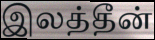
இலத்தீன்